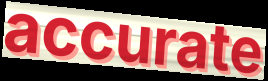
accurate